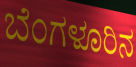
ಬೆಂಗಳೂರಿನ